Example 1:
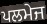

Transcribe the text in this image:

ਪਲਮੇਜ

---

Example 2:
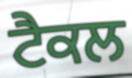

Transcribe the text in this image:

ਟੈਕਲ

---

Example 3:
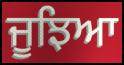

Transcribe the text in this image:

ਜੂਝਿਆ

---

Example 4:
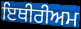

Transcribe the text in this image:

ਇਥੀਰੀਅਮ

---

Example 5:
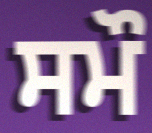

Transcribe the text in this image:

ਸਮੌ